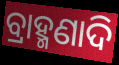
ବ୍ରାହ୍ମଣାଦି